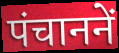
पंचाननें